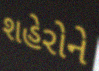
શહેરોને